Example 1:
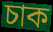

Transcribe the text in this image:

চাক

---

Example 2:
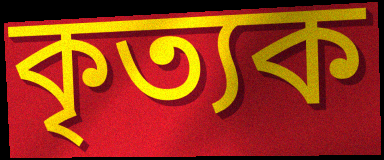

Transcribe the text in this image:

কৃত্যক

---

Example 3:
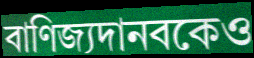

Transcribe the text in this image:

বাণিজ্যদানবকেও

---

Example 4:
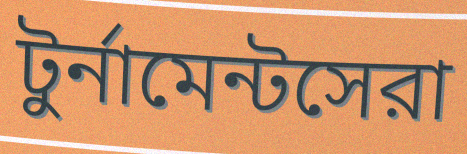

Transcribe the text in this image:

টুর্নামেন্টসেরা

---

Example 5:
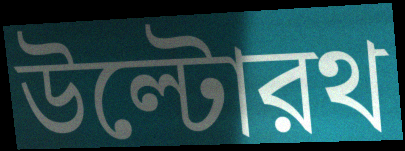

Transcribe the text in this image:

উল্টোরথ